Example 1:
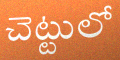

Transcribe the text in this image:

చెట్టులో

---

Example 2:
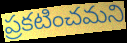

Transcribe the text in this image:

ప్రకటించమని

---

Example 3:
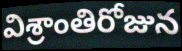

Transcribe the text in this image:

విశ్రాంతిరోజున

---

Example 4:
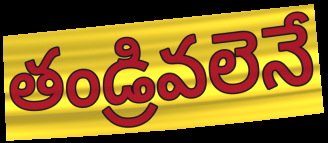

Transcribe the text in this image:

తండ్రివలెనే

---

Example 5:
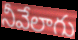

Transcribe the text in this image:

నీవేలాగు